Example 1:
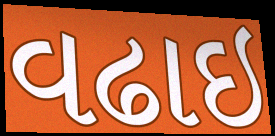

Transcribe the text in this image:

વઢાઇ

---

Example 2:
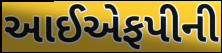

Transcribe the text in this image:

આઈએફપીની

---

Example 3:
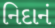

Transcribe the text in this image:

નિદાનં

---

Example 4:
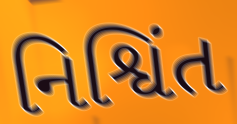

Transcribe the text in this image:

નિશ્વિંત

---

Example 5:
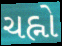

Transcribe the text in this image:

ચહ્નો